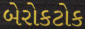
બેરોકટોક